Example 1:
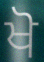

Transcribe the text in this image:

ਖੋ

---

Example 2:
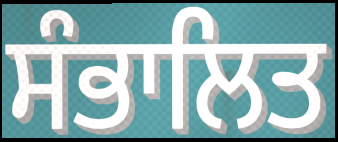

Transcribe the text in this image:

ਸੰਭਾਲਿਤ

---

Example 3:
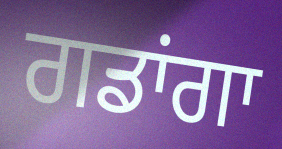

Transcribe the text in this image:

ਗਡਾਂਗਾ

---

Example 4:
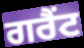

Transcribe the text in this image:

ਗਰੈਂਟ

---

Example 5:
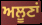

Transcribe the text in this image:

ਅਲੂਣਾਂ